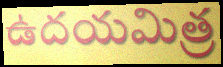
ఉదయమిత్ర